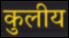
कुलीय